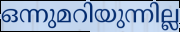
ഒന്നുമറിയുന്നില്ല